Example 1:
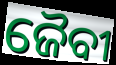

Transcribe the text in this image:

ଜୈବୀ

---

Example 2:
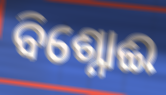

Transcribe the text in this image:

ବିଶ୍ନୋଈ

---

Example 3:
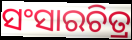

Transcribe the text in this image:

ସଂସାରଚିତ୍ର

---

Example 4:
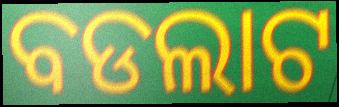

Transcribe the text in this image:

ବଡଲାଟ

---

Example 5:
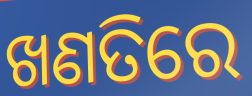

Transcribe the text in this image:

ଖଣତିରେ